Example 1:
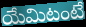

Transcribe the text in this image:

యేమిటంటే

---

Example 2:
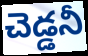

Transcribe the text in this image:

చెడ్డనీ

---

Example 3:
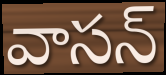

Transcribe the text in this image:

వాసన్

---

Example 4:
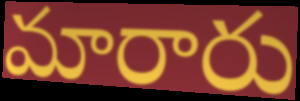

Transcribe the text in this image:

మారారు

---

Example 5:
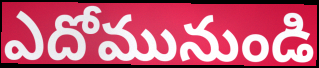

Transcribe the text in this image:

ఎదోమునుండి